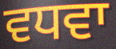
ਵਧਵਾ